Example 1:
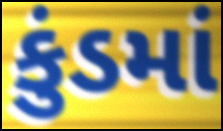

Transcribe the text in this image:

કુંડમાં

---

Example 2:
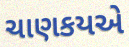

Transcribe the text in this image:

ચાણકયએ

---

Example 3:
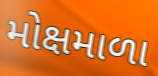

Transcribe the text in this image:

મોક્ષમાળા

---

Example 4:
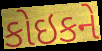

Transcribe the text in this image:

કોઇકને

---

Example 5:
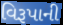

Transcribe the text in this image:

વિરૂપાની